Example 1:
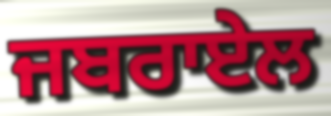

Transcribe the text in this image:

ਜਬਰਾਏਲ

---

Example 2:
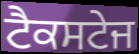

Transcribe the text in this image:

ਟੈਕਸਟੇਜ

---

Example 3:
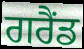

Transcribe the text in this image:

ਗਰੈਂਡ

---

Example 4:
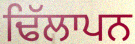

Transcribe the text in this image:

ਢਿੱਲਾਪਨ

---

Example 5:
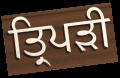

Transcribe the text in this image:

ਤ੍ਰਿਪਡ਼ੀ